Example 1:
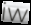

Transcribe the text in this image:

iw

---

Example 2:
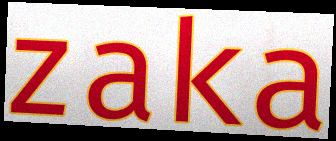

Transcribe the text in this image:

zaka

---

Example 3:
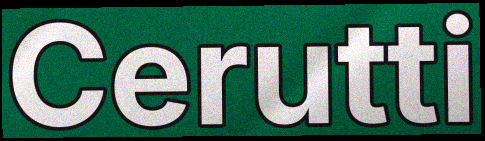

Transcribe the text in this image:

Cerutti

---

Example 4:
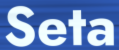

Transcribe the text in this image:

Seta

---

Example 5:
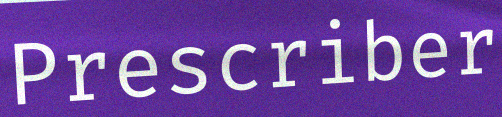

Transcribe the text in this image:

Prescriber